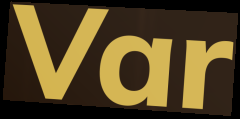
Var